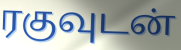
ரகுவுடன்